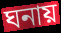
ঘনায়